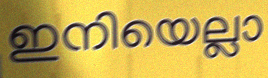
ഇനിയെല്ലാ